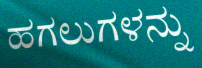
ಹಗಲುಗಳನ್ನು